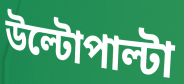
উল্টোপাল্টা